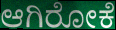
ಆಗಿರೋಕೆ